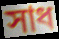
সাধ